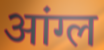
आंग्ल